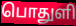
பொதுளி